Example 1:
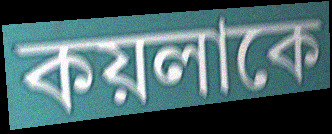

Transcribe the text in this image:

কয়লাকে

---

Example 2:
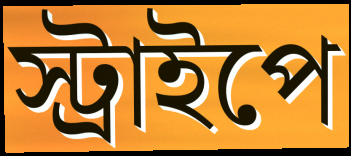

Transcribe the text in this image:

স্ট্রাইপে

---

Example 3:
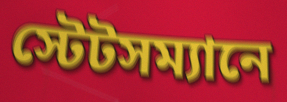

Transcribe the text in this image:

স্টেটসম্যানে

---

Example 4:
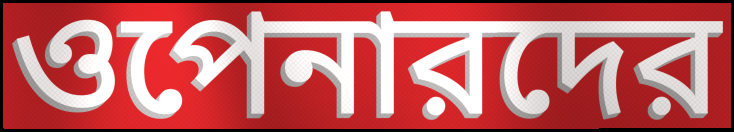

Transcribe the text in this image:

ওপেনারদের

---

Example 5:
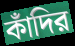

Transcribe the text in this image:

কাঁদির